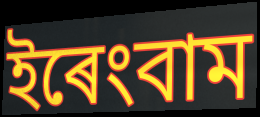
ইৰেংবাম